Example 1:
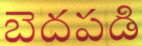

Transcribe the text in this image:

బెదపడి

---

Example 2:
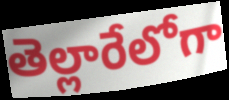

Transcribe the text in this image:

తెల్లారేలోగా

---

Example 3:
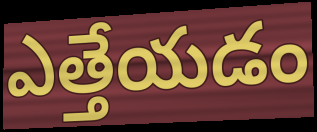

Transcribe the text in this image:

ఎత్తేయడం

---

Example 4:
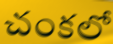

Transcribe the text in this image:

చంకలో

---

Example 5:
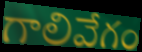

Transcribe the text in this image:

గాలివేగం